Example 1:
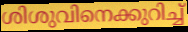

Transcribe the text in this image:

ശിശുവിനെക്കുറിച്ച്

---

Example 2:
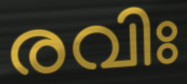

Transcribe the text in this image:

രവിഃ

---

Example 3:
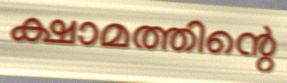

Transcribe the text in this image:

ക്ഷാമത്തിന്റെ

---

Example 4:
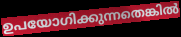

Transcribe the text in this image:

ഉപയോഗിക്കുന്നതെങ്കിൽ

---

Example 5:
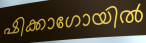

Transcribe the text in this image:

ഷിക്കാഗോയിൽ